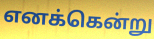
எனக்கென்று